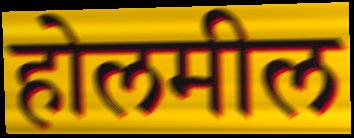
होलमील